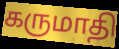
கருமாதி